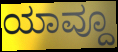
ಯಾವ್ದೂ